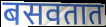
बसवतात